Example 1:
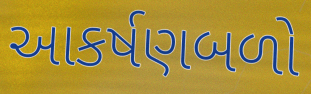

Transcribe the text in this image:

આકર્ષણબળો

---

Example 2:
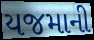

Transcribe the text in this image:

યજમાની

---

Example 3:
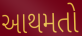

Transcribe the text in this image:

આથમતો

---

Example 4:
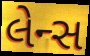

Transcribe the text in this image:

લેન્સ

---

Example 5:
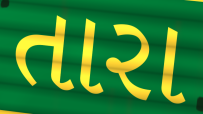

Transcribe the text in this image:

તારા